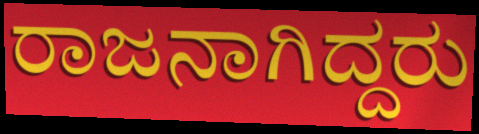
ರಾಜನಾಗಿದ್ದರು